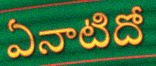
ఏనాటిదో